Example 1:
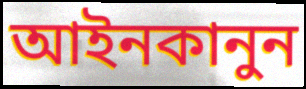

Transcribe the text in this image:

আইনকানুন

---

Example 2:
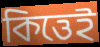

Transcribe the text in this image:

কিত্তেই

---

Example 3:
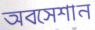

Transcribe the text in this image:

অবসেশান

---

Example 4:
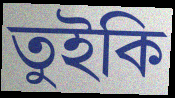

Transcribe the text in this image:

তুইকি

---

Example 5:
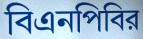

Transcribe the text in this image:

বিএনপিবির